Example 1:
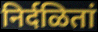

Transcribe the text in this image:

निर्दळितां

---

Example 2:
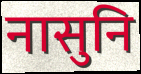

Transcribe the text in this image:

नासुनि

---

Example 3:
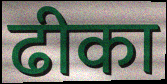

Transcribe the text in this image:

ढीका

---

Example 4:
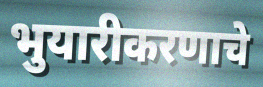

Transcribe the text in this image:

भुयारीकरणाचे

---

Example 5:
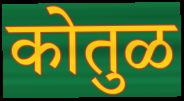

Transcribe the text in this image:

कोतुळ